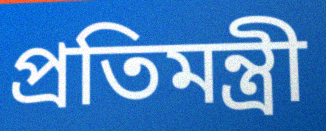
প্রতিমন্ত্রী